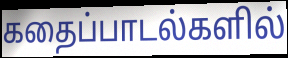
கதைப்பாடல்களில்